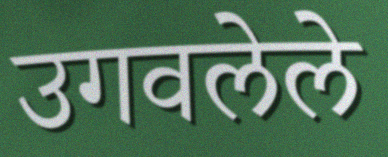
उगवलेले